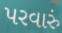
પરવારું